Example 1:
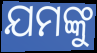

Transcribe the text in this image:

ଯମଙ୍କୁ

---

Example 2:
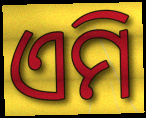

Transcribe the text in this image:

ଏମି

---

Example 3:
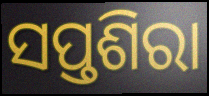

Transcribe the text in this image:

ସପ୍ତଶିରା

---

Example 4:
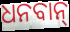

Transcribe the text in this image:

ଧନବାନ୍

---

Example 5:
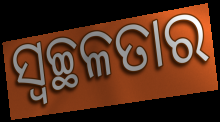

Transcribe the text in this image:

ସ୍ଵଚ୍ଛଳତାର